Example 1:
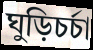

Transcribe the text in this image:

ঘুড়িচর্চা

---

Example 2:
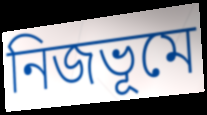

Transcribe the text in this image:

নিজভূমে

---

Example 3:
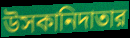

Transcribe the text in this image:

উসকানিদাতার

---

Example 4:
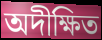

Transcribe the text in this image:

অদীক্ষিত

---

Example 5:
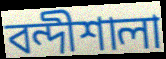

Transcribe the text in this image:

বন্দীশালা